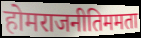
होमराजनीतिममता